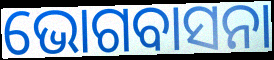
ଭୋଗବାସନା